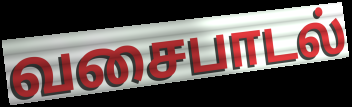
வசைபாடல்